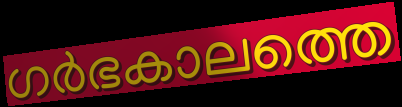
ഗർഭകാലത്തെ